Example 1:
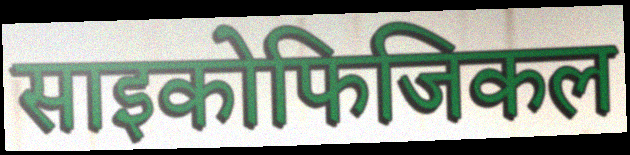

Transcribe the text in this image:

साइकोफिजिकल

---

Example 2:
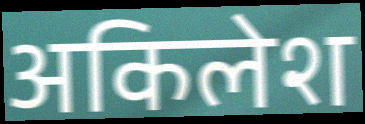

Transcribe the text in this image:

अकिलेश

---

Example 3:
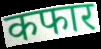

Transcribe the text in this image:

कफार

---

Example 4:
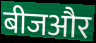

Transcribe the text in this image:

बीजऔर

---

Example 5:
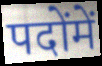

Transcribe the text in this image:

पदोंमें